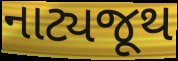
નાટ્યજૂથ